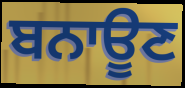
ਬਨਾਊਣ